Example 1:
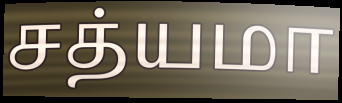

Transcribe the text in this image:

சத்யமா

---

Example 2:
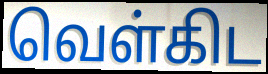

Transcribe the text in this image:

வெள்கிட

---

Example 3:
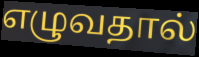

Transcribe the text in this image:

எழுவதால்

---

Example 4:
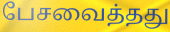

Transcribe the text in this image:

பேசவைத்தது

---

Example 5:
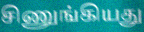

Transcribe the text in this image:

சிணுங்கியது